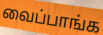
வைப்பாங்க